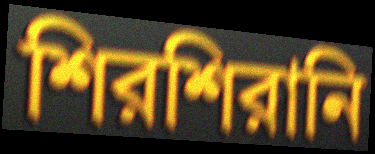
শিরশিরানি